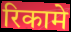
रिकामे